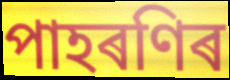
পাহৰণিৰ